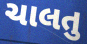
ચાલતુ